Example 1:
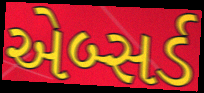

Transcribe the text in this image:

એબ્સર્ડ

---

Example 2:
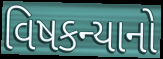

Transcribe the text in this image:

વિષકન્યાનો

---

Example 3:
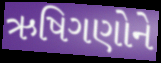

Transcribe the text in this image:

ઋષિગણોને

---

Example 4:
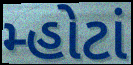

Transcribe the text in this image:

મ્હોટાં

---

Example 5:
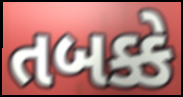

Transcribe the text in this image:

તબક્કે